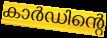
കാർഡിന്റെ